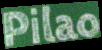
Pilao